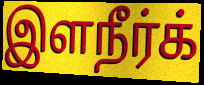
இளநீர்க்